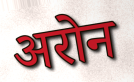
अरोन